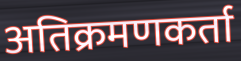
अतिक्रमणकर्ता